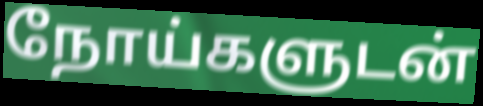
நோய்களுடன்